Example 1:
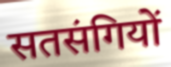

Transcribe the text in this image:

सतसंगियों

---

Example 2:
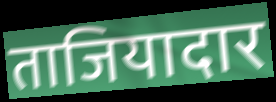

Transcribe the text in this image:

ताजियादार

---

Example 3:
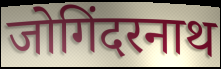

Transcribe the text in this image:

जोगिंदरनाथ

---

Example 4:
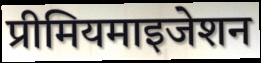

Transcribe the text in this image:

प्रीमियमाइजेशन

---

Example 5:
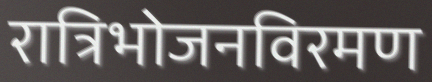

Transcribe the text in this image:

रात्रिभोजनविरमण